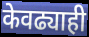
केवढ्याही